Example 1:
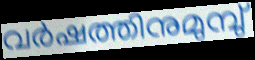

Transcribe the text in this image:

വർഷത്തിനുമുമ്പു്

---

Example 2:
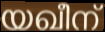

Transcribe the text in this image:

യഖീന്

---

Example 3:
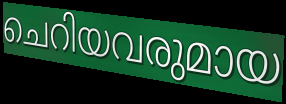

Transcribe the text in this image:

ചെറിയവരുമായ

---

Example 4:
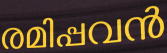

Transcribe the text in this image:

രമിപ്പവൻ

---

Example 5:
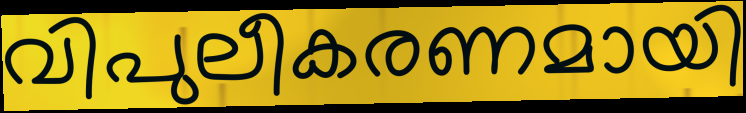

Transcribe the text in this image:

വിപുലീകരണമായി